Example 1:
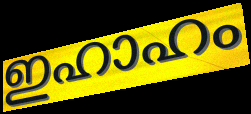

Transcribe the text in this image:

ഇഹാഹം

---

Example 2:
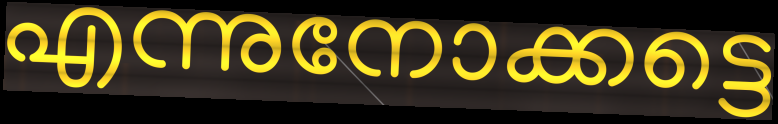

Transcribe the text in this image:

എന്നുനോക്കട്ടെ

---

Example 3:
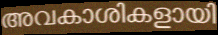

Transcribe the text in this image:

അവകാശികളായി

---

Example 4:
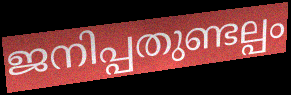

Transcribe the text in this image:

ജനിപ്പതുണ്ടല്പം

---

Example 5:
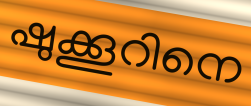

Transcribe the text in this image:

ഷുക്കൂറിനെ